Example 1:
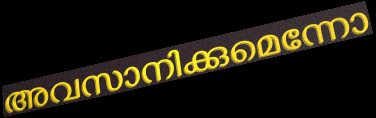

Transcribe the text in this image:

അവസാനിക്കുമെന്നോ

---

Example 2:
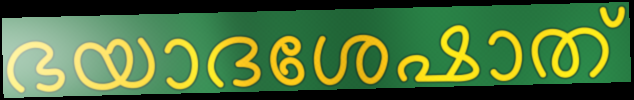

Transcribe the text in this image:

ഭയാദശേഷാത്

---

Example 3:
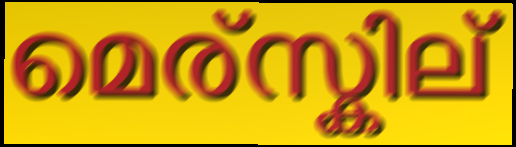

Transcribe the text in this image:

മെര്സ്കില്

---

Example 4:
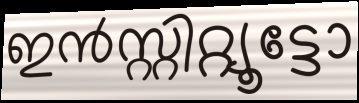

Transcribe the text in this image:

ഇൻസ്റ്റിറ്റ്യൂട്ടോ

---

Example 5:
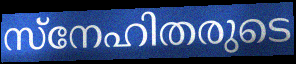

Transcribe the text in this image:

സ്നേഹിതരുടെ